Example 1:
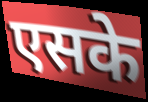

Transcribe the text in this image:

एसके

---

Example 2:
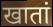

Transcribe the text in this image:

खातां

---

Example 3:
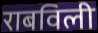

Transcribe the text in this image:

राबविली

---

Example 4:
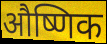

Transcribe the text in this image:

औष्णिक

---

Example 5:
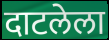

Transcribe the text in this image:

दाटलेला